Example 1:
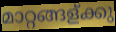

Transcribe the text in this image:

മാറ്റങ്ങള്ക്കു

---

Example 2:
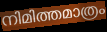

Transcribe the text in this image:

നിമിത്തമാത്രം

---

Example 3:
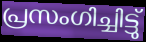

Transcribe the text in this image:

പ്രസംഗിച്ചിട്ടു്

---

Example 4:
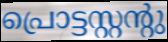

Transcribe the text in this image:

പ്രൊട്ടസ്റ്റന്റു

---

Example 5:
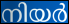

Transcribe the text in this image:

നിയർ